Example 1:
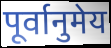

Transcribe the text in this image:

पूर्वानुमेय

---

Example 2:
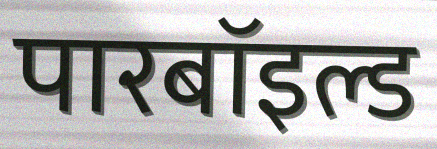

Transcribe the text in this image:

पारबॉइल्ड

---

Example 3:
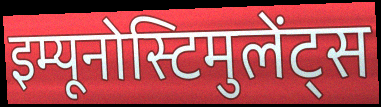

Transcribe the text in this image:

इम्यूनोस्टिमुलेंट्स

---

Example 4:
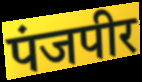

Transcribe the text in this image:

पंजपीर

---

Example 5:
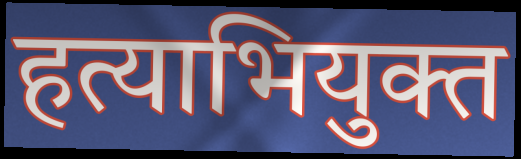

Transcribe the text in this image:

हत्याभियुक्त